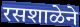
रसशाळेने